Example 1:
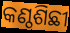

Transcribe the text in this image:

କଣ୍ଠଶିଛୀ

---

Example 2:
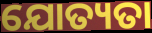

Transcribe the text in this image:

ଯୋତ୍ୟତା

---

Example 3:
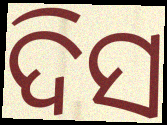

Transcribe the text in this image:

ଦିସ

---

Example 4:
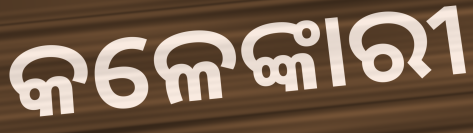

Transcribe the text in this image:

କଳେଙ୍କାରୀ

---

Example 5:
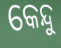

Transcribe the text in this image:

କେନ୍ଦୁ